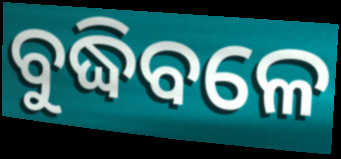
ବୁଦ୍ଧିବଳେ